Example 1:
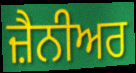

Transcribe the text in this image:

ਜ਼ੈਨੀਅਰ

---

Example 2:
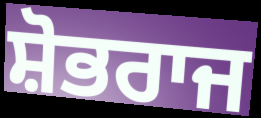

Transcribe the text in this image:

ਸ਼ੋਭਰਾਜ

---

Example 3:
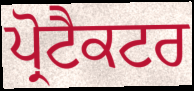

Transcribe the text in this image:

ਪ੍ਰੋਟੈਕਟਰ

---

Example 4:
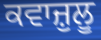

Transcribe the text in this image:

ਕਵਾਜ਼ੁਲੂ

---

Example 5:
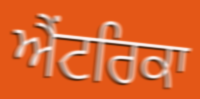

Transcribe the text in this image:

ਐਂਟਰਿਕਾ